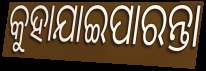
କୁହାଯାଇପାରନ୍ତା